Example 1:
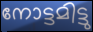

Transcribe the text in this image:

നോട്ടമിട്ടു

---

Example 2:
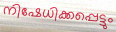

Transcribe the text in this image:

നിഷേധിക്കപ്പെട്ടും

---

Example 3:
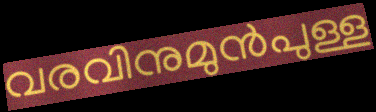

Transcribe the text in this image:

വരവിനുമുൻപുള്ള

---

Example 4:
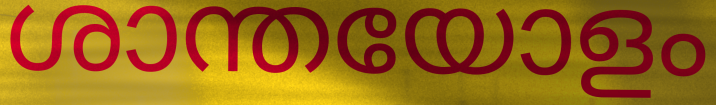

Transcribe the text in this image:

ശാന്തയോളം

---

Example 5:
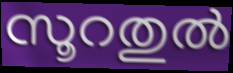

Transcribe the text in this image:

സൂറതുൽ